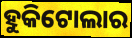
ହୁକିଟୋଲାର